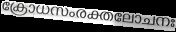
ക്രോധസംരക്തലോചനഃ